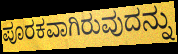
ಪೂರಕವಾಗಿರುವುದನ್ನು